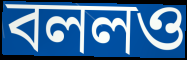
বললও